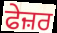
ਫੇਜ਼ਰ